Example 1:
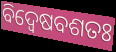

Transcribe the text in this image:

ବିଦ୍ୱେଷବଶତଃ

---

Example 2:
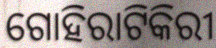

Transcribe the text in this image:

ଗୋହିରାଟିକିରୀ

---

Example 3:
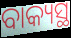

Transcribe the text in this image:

ବାକ୍ୟସ୍ଥ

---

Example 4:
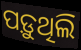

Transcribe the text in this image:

ପଡ଼ୁଥିଲି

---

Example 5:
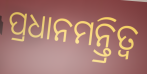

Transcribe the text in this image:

ପ୍ରଧାନମନ୍ତ୍ରିତ୍ଵ